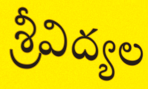
శ్రీవిద్యల